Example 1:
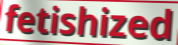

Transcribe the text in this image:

fetishized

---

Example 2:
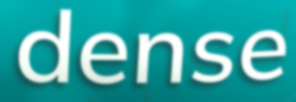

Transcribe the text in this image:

dense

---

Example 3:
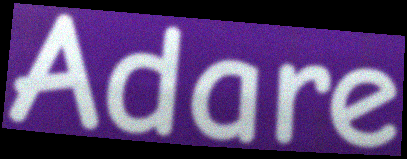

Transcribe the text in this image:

Adare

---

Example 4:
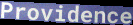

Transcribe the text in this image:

Providence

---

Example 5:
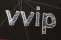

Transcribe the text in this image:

vvip